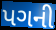
પગની